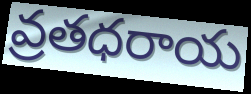
వ్రతధరాయ